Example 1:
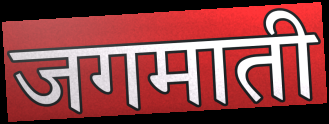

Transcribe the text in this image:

जगमाती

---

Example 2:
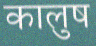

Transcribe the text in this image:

कालुष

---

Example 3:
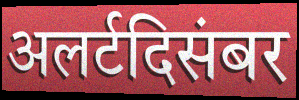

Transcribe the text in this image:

अलर्टदिसंबर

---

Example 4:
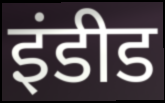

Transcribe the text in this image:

इंडीड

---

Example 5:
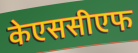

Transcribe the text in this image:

केएससीएफ